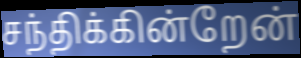
சந்திக்கின்றேன்